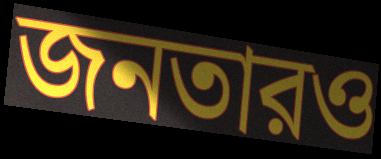
জনতারও